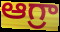
ఆగ్రా